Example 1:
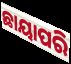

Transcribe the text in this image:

ଛାୟାପରି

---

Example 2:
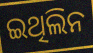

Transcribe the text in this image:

ଇଥିଲିନ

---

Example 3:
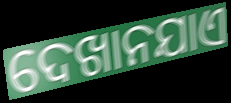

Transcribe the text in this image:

ଦେଖାନଯାଏ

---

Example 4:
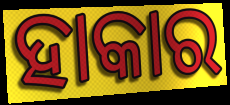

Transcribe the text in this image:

ହାକାର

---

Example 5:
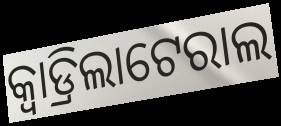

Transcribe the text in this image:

କ୍ୱାଡ୍ରିଲାଟେରାଲ